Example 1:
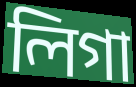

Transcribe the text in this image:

লিগা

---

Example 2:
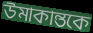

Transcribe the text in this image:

উমাকান্তকে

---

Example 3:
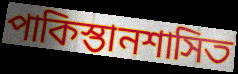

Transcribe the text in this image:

পাকিস্তানশাসিত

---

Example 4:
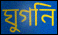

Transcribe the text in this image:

ঘুগনি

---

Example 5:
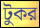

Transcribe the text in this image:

টুকর